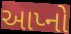
આપ્નો